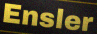
Ensler